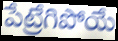
పేట్రేగిపోయే